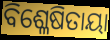
ବିଶ୍ଳେଷିତାୟା